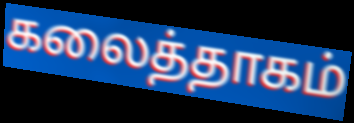
கலைத்தாகம்